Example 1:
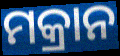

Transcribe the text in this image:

ମକ୍ରାନ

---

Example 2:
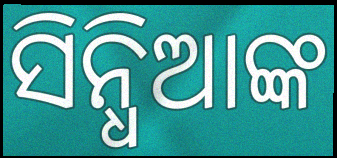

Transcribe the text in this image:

ସିନ୍ଧିଆଙ୍କ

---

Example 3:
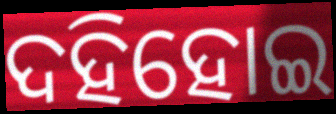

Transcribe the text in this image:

ଦହିହୋଇ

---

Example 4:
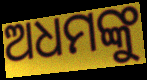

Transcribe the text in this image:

ଅଧମଙ୍କୁ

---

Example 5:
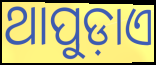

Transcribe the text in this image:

ଥାପୁଡ଼ାଏ